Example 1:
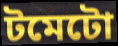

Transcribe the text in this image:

টমেটো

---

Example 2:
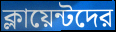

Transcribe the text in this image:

ক্লায়েন্টদের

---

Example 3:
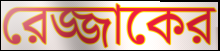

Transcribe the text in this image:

রেজ্জাকের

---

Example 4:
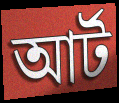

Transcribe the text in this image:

আর্ট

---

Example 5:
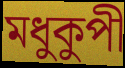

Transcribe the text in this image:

মধুকুপী